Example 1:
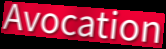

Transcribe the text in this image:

Avocation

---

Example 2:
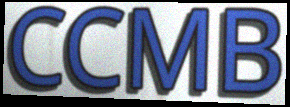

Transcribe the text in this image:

CCMB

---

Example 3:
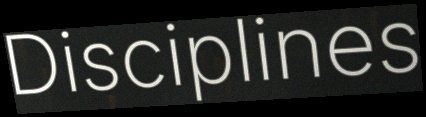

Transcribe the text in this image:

Disciplines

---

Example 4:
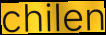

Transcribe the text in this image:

chilen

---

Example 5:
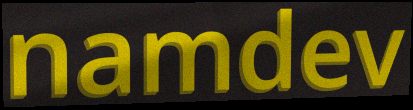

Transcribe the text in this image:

namdev